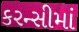
કરન્સીમાં